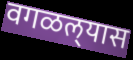
वगळल्यास